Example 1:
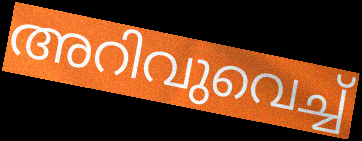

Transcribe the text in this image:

അറിവുവെച്ച്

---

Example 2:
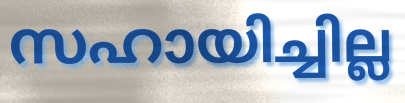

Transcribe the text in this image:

സഹായിച്ചില്ല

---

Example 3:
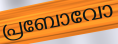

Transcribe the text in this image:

പ്രബോവോ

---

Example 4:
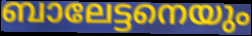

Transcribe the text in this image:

ബാലേട്ടനെയും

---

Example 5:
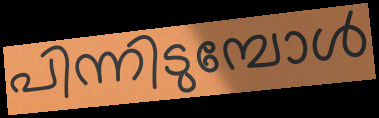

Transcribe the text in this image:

പിന്നിടുമ്പോൾ